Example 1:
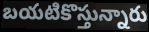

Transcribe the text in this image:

బయటికొస్తున్నారు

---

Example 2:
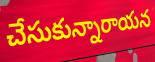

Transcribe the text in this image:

చేసుకున్నారాయన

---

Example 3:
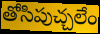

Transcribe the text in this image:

తోసిపుచ్చలేం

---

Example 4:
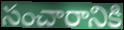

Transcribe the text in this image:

సంచారానికి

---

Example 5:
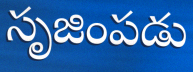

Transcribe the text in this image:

సృజింపడు